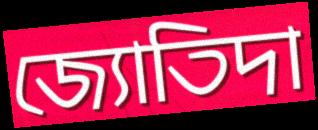
জ্যোতিদা